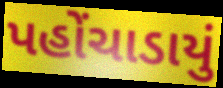
પહોંચાડાયું